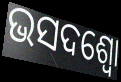
ଭସଦଶ୍ଵୋ